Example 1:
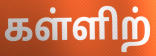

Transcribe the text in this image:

கள்ளிற்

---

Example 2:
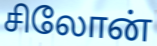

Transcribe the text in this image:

சிலோன்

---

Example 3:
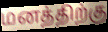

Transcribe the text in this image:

மனத்திற்கு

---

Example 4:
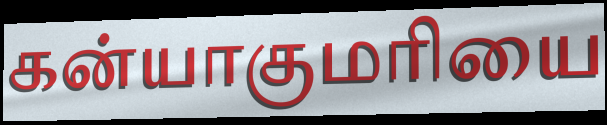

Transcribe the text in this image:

கன்யாகுமரியை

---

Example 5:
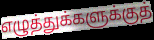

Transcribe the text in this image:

எழுத்துக்களுக்குத்